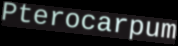
Pterocarpum